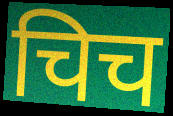
चिच